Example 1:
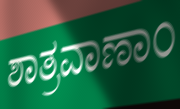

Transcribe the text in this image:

ಶಾತ್ರವಾಣಾಂ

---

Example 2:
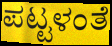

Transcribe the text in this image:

ಪಟ್ಟಳಂತೆ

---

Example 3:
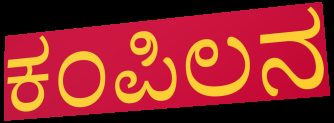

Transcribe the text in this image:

ಕಂಪಿಲನ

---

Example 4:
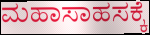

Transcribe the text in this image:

ಮಹಾಸಾಹಸಕ್ಕೆ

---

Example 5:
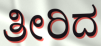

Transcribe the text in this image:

ತೀರಿದ